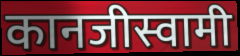
कानजीस्वामी